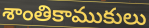
శాంతికాముకులు